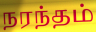
நரந்தம்